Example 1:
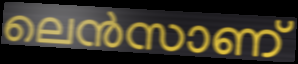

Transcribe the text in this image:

ലെൻസാണ്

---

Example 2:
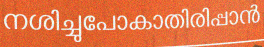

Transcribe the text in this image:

നശിച്ചുപോകാതിരിപ്പാൻ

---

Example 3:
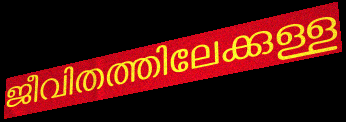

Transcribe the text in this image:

ജീവിതത്തിലേക്കുള്ള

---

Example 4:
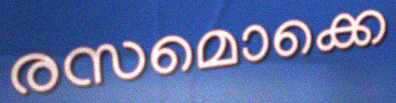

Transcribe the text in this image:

രസമൊക്കെ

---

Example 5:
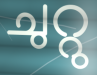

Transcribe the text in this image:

ചുറ്റു